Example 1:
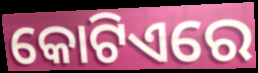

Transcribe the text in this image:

କୋଟିଏରେ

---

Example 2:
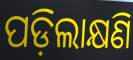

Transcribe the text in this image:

ପଡ଼ିଲାକ୍ଷଣି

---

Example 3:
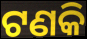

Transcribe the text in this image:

ଟଣକି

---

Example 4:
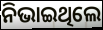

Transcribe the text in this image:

ନିଭାଇଥିଲେ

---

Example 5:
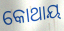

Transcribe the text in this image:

କୋଥାୟ